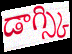
డాగ్స్కి